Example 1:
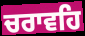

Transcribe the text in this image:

ਚਰਾਵਹਿ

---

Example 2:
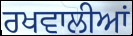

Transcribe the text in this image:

ਰਖਵਾਲੀਆਂ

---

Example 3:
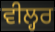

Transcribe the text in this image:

ਵੀਲ੍ਹਰ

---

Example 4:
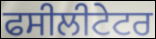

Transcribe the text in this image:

ਫਸੀਲੀਟੇਟਰ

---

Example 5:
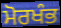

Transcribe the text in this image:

ਮੋਰਖੰਭ